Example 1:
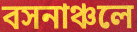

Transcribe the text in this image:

বসনাঞ্চলে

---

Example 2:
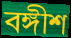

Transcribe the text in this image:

বঙ্গীশ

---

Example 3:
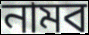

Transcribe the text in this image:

নামব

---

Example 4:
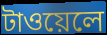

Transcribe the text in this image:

টাওয়েলে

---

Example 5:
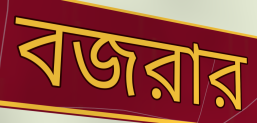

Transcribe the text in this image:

বজরার